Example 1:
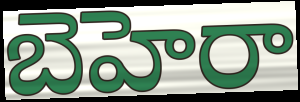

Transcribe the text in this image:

బెహెరా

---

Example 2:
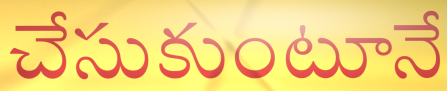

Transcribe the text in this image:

చేసుకుంటూనే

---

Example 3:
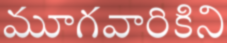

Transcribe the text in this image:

మూగవారికిని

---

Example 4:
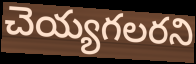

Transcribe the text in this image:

చెయ్యగలరని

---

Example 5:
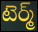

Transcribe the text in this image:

టెర్మ్